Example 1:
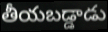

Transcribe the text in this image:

తీయబడ్డాడు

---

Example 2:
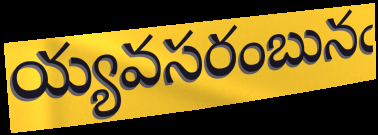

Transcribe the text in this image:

య్యవసరంబునఁ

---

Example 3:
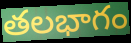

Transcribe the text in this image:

తలభాగం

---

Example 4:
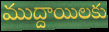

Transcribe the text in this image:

ముద్దాయిలకు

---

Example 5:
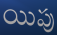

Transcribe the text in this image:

యిపు